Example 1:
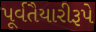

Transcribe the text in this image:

પૂર્વતૈયારીરૂપે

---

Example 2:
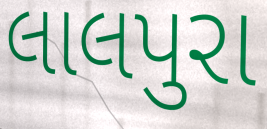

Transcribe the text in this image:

લાલપુરા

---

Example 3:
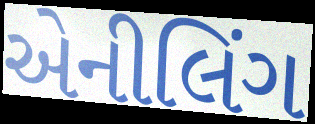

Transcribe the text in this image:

એનીલિંગ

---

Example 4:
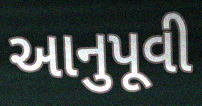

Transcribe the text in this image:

આનુપૂવી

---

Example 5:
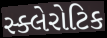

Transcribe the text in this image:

સ્ક્લેરોટિક